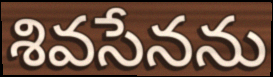
శివసేనను